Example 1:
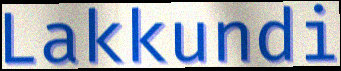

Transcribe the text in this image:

Lakkundi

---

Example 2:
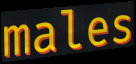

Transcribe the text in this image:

males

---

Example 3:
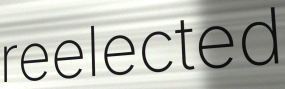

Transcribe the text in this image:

reelected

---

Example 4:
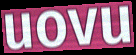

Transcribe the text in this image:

uovu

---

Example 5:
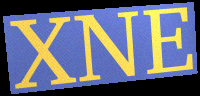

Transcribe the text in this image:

XNE